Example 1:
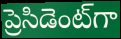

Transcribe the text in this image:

ప్రెసిడెంట్‌గా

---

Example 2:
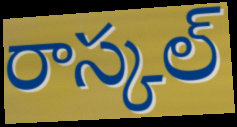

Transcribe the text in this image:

రాస్కల్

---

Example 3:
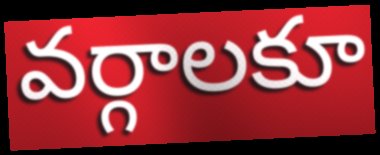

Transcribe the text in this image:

వర్గాలకూ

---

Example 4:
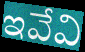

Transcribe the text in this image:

ఇవేవి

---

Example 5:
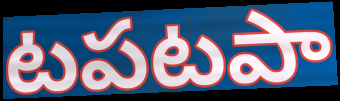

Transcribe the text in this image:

టపటపా